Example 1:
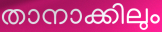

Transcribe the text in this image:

താനാക്കിലും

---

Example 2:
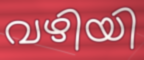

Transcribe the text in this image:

വഴിയി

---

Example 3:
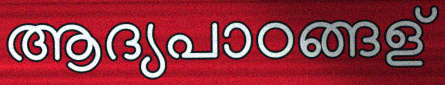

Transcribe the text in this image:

ആദ്യപാഠങ്ങള്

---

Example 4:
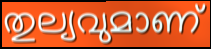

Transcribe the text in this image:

തുല്യവുമാണ്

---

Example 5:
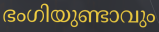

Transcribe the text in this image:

ഭംഗിയുണ്ടാവും